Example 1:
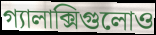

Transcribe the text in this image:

গ্যালাক্সিগুলোও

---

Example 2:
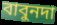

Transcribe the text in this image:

বাবুনদা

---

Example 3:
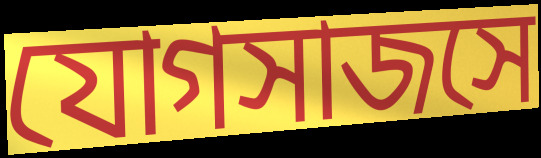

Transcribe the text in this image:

যোগসাজসে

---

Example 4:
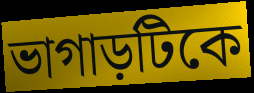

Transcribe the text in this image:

ভাগাড়টিকে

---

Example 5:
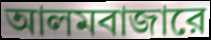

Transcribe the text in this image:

আলমবাজারে